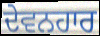
ਦੇਵਨਹਾਰ